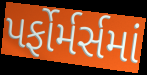
પર્ફોર્મર્સમાં